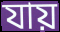
যায়